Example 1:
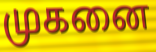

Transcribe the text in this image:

முகனை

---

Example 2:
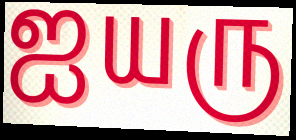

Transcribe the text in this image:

ஐயரு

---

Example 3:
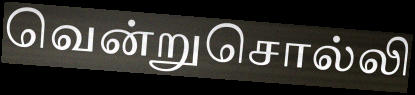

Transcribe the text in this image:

வென்றுசொல்லி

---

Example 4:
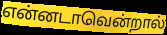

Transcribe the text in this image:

என்னடாவென்றால்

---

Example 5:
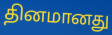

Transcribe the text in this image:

தினமானது